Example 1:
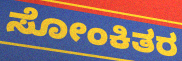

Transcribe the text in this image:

ಸೋಂಕಿತರ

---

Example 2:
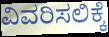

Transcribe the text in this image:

ವಿವರಿಸಲಿಕ್ಕೆ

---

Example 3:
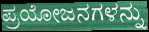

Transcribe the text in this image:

ಪ್ರಯೋಜನಗಳನ್ನು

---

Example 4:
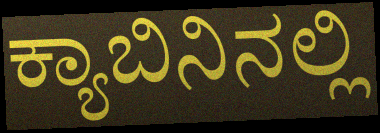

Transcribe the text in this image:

ಕ್ಯಾಬಿನಿನಲ್ಲಿ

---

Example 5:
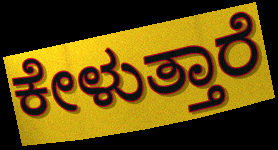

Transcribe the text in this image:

ಕೇಳುತ್ತಾರೆ